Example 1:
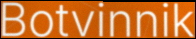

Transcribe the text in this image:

Botvinnik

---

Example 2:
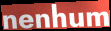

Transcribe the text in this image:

nenhum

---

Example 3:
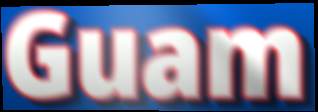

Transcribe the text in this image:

Guam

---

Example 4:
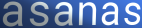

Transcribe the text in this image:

asanas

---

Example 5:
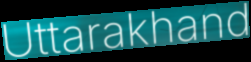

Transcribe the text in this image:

Uttarakhand